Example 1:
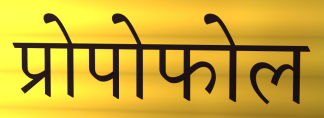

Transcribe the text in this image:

प्रोपोफोल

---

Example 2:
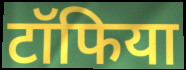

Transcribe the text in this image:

टॉफिया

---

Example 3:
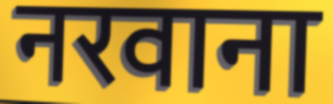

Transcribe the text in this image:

नरवाना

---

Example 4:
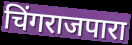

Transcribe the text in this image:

चिंगराजपारा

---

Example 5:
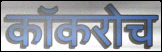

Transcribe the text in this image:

कॉकरोच